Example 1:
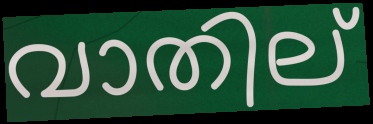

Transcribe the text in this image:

വാതില്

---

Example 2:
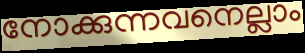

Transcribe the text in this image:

നോക്കുന്നവനെല്ലാം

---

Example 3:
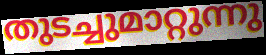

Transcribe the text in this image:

തുടച്ചുമാറ്റുന്നു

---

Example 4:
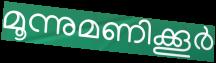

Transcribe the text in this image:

മൂന്നുമണിക്കൂർ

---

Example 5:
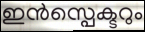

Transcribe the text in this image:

ഇൻസ്പെക്ടറും